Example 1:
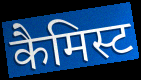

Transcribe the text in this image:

कैमिस्ट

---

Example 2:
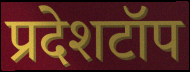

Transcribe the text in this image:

प्रदेशटॉप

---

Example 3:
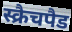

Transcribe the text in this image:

स्क्रैचपैड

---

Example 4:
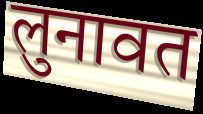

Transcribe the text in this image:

लुनावत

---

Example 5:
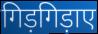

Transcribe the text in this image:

गिड़गिड़ाए